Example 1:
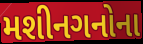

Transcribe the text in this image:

મશીનગનોના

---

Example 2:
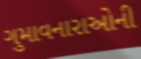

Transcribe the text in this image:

ગુમાવનારાઓની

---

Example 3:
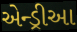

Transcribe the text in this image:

એન્ડ્રીઆ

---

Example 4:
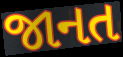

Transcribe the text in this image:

જાનત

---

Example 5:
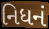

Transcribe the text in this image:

નિધનં